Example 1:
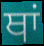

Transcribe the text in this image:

ਥਾਂ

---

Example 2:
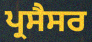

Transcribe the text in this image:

ਪ੍ਰਸੈਸਰ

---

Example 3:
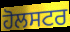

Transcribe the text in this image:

ਹੋਲਸਟਰ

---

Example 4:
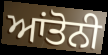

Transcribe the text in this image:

ਆਂਤੋਨੀ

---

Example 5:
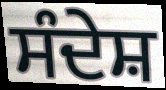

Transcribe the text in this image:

ਸੰਦੇਸ਼